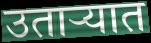
उताऱ्यात